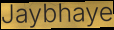
Jaybhaye